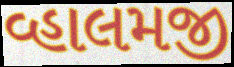
વ્હાલમજી